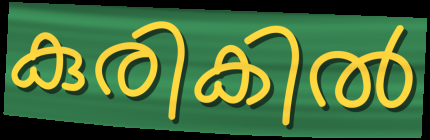
കുരികിൽ